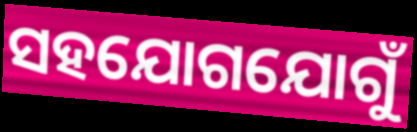
ସହଯୋଗଯୋଗୁଁ